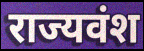
राज्यवंश